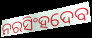
ନରସିଂହଦେବ